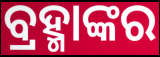
ବ୍ରହ୍ମାଙ୍କର